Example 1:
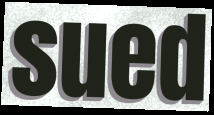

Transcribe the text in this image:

sued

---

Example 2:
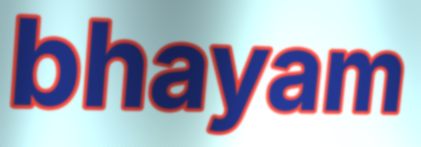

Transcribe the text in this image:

bhayam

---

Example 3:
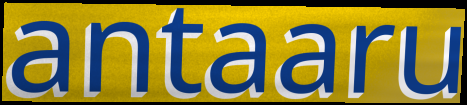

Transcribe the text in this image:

antaaru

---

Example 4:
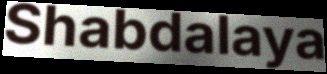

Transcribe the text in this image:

Shabdalaya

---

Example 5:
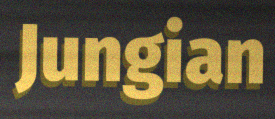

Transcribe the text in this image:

Jungian